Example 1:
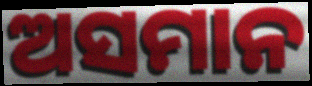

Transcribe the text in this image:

ଅସମାନ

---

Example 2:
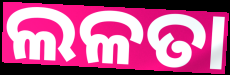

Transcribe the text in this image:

ଲଳତା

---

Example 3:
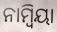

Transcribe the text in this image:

ନାମ୍ୱିୟା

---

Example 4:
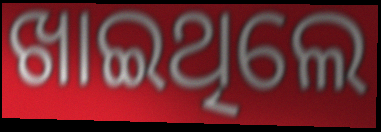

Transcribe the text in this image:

ଖାଇଥିଲେ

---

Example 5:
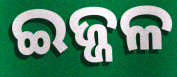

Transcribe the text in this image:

ଇଜ୍ଜଳ